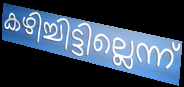
കഴിച്ചിട്ടില്ലെന്ന്